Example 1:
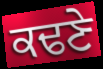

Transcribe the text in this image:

ਕਢਣੇ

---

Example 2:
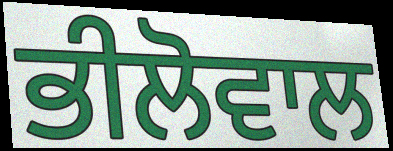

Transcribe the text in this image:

ਭੀਲੋਵਾਲ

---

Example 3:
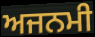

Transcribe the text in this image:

ਅਜਨਮੀ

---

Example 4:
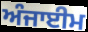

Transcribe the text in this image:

ਅੰਜਾਈਮ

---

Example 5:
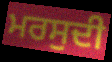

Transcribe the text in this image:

ਮਰਸੁਦੀ